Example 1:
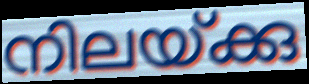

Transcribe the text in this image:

നിലയ്‌ക്കു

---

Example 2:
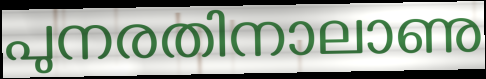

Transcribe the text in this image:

പുനരതിനാലാണു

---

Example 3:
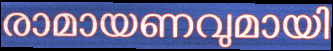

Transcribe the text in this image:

രാമായണവുമായി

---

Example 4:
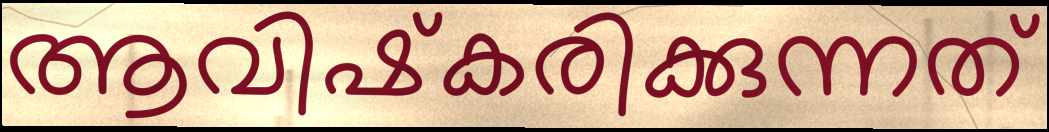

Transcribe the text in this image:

ആവിഷ്‌കരിക്കുന്നത്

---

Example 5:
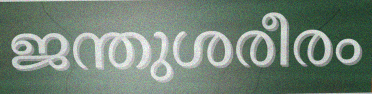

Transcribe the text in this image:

ജന്തുശരീരം